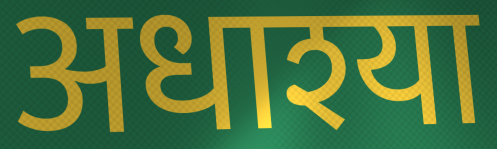
अधाश्या